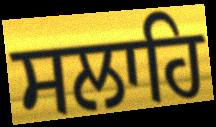
ਸਲਾਹਿ